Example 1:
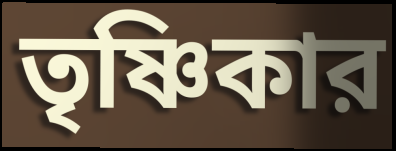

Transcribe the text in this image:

তৃষ্ণিকার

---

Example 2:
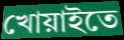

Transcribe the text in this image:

খোয়াইতে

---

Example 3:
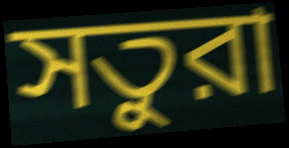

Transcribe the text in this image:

সতুরা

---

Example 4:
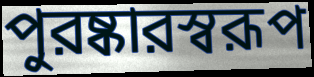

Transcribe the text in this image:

পুরষ্কারস্বরূপ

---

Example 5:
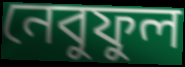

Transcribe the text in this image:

নেবুফুল